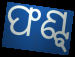
ଫଣ୍ଟ୍